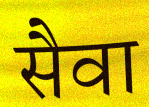
सैवा